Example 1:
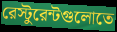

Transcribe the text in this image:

রেস্টুরেন্টগুলোতে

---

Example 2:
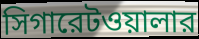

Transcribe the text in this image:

সিগারেটওয়ালার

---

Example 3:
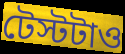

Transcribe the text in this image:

টেস্টটাও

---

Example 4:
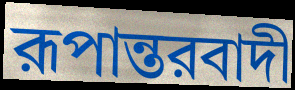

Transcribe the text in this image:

রূপান্তরবাদী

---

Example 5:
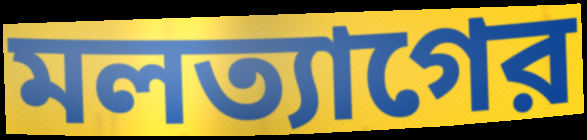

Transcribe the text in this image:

মলত্যাগের